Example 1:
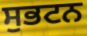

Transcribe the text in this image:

ਸੁਭਟਨ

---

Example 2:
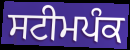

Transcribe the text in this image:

ਸਟੀਮਪੰਕ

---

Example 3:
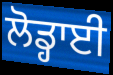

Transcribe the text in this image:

ਲੋਡ੍ਹਾਈ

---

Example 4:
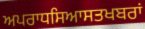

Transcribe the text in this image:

ਅਪਰਾਧਸਿਆਸਤਖਬਰਾਂ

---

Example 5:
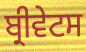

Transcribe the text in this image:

ਬ੍ਰੀਵੇਟਸ